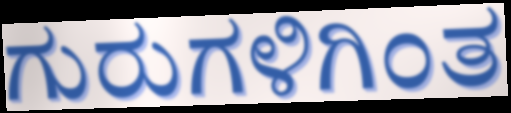
ಗುರುಗಳಿಗಿಂತ